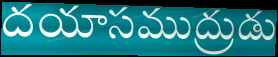
దయాసముద్రుడు